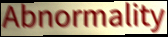
Abnormality